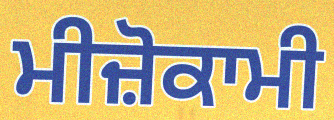
ਮੀਜ਼ੋਕਾਮੀ